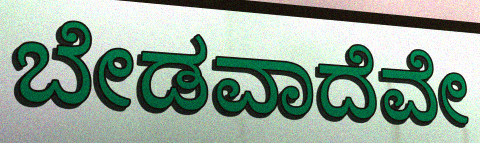
ಬೇಡವಾದೆವೇ